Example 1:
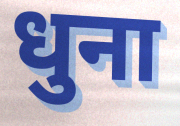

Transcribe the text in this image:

धुना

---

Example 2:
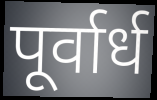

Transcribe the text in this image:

पूर्वार्ध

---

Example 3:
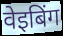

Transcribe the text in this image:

वेइबिंग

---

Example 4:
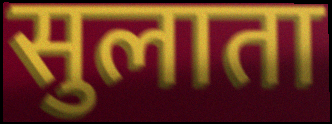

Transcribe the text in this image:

सुलाता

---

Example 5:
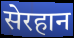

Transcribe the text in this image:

सेरहान